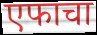
एफाचा